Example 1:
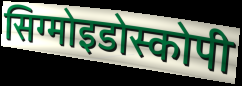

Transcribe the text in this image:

सिग्मोइडोस्कोपी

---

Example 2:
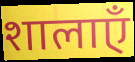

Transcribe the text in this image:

शालाएँ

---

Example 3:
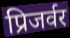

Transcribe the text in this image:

प्रिजर्वर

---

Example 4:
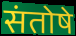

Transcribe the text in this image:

संतोषे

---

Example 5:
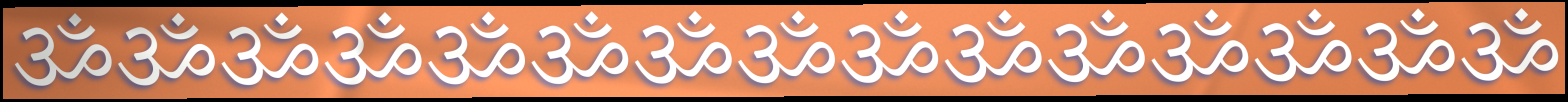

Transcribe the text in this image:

ॐॐॐॐॐॐॐॐॐॐॐॐॐॐॐ